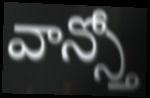
వాన్స్తో